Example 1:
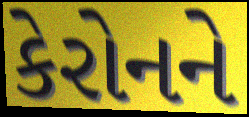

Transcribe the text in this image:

કેરોનને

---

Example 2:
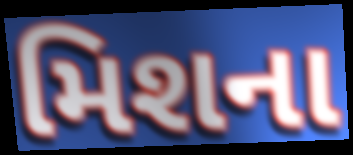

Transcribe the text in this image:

મિશના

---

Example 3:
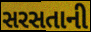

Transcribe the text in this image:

સરસતાની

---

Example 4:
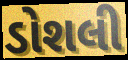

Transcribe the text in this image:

ડોશલી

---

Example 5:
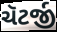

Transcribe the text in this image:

ચૅટર્જી